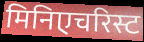
मिनिएचरिस्ट